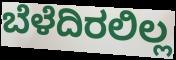
ಬೆಳೆದಿರಲಿಲ್ಲ